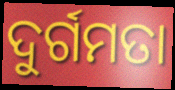
ଦୁର୍ଗମତା